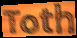
Toth